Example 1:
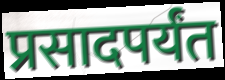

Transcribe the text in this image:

प्रसादपर्यंत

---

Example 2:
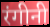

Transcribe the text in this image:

रंगीनी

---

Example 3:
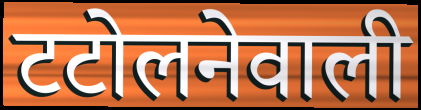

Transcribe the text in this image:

टटोलनेवाली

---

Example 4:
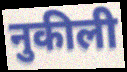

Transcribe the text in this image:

नुकीली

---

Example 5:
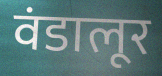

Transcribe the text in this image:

वंडालूर